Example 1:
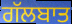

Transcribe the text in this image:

ਗੱਲਬਾਤ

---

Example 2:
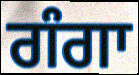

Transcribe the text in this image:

ਗੰਗਾ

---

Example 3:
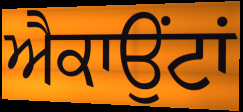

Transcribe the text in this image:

ਐਕਾਉਂਟਾਂ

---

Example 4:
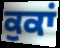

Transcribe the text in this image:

ਕੁਕਾਂ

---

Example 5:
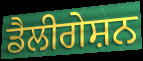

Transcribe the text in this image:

ਡੈਲੀਗੇਸ਼ਨ